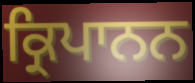
ਕ੍ਰਿਪਾਨਨ